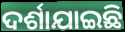
ଦର୍ଶାଯାଇଛି